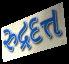
રુદ્રદત્ત